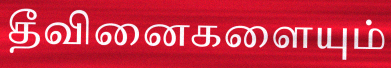
தீவினைகளையும்